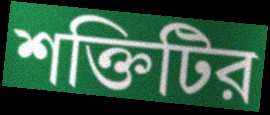
শক্তিটির